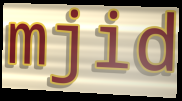
mjid